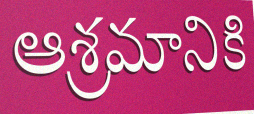
ఆశ్రమానికి